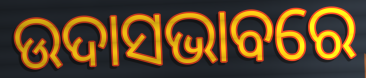
ଉଦାସଭାବରେ